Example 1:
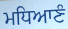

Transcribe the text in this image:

ਮਧਿਆਣੰ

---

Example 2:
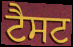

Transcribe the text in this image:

ਟੈਸਟ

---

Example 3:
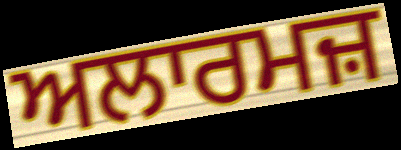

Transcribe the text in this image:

ਅਲਾਰਮਜ਼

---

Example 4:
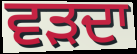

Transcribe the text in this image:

ਵੜਦਾ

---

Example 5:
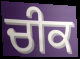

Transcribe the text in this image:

ਚੀਕ